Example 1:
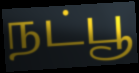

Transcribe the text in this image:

நட்பூ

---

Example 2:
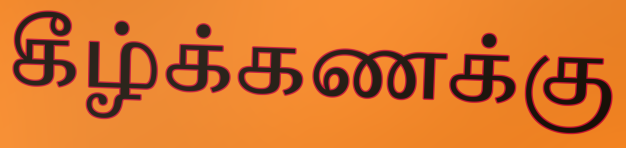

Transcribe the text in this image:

கீழ்க்கணக்கு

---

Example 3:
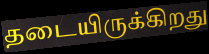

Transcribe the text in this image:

தடையிருக்கிறது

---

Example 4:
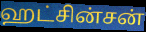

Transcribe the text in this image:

ஹட்சின்சன்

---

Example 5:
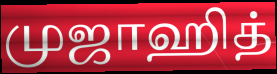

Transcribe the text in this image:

முஜாஹித்